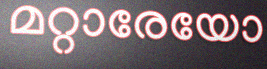
മറ്റാരേയോ